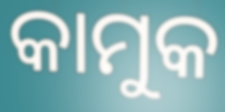
କାମୁକ